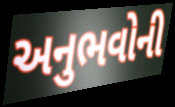
અનુભવોની